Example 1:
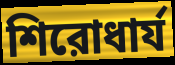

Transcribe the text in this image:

শিরোধার্য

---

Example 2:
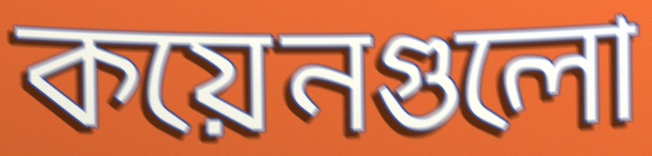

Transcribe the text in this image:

কয়েনগুলো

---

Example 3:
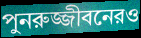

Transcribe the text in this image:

পুনরুজ্জীবনেরও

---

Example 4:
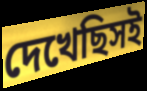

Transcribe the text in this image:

দেখেছিসই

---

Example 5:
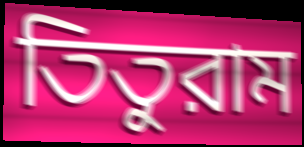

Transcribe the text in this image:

তিতুরাম